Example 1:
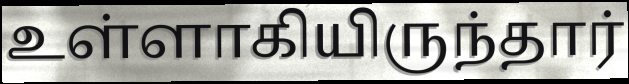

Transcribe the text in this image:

உள்ளாகியிருந்தார்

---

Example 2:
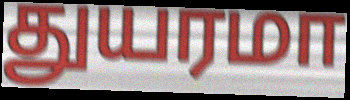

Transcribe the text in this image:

துயரமா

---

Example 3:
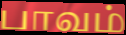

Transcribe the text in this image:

பாவம்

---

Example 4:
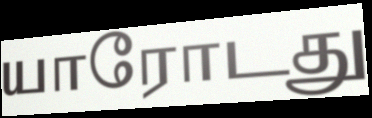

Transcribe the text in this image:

யாரோடது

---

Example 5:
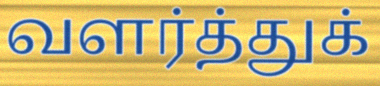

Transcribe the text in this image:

வளர்த்துக்